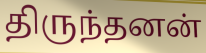
திருந்தனன்